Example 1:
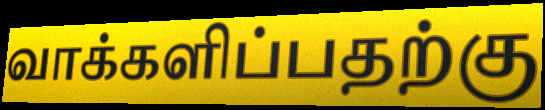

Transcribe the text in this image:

வாக்களிப்பதற்கு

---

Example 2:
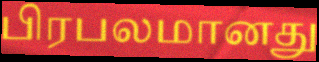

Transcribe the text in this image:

பிரபலமானது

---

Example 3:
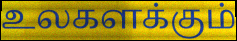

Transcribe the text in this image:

உலகளக்கும்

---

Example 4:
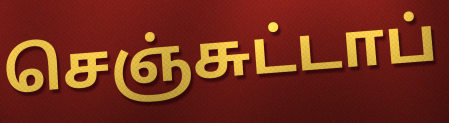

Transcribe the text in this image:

செஞ்சுட்டாப்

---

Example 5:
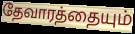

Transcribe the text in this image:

தேவாரத்தையும்